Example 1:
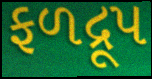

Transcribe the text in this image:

ફળદ્રૂપ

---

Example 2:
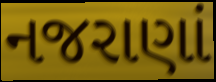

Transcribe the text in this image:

નજરાણાં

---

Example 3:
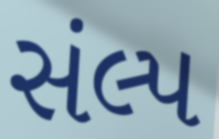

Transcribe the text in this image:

સંલ્પ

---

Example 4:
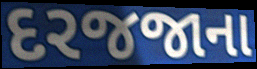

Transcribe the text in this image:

દરજજાના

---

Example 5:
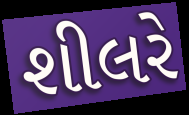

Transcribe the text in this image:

શીલરે